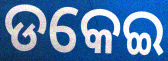
ଡକେଇ